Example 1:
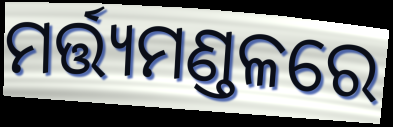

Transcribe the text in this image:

ମର୍ତ୍ତ୍ୟମଣ୍ଡଳରେ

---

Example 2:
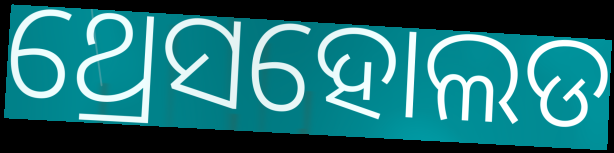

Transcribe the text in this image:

ଥ୍ରେସହୋଲଡ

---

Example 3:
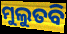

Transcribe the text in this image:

ମୁଲୁତବି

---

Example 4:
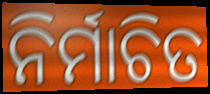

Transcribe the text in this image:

ନିର୍ମାଚିତ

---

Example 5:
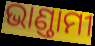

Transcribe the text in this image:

ଭାଣ୍ଡାମୀ